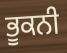
ਭੂਕਨੀ